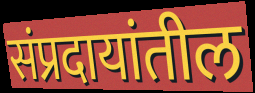
संप्रदायांतील